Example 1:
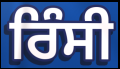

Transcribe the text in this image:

ਰਿੰਸੀ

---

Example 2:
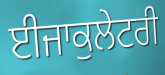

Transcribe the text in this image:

ਈਜਾਕੁਲੇਟਰੀ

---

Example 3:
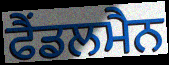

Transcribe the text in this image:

ਫੈਂਡਲਮੈਨ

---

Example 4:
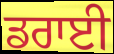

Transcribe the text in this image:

ਡਰਾਈ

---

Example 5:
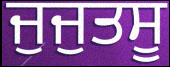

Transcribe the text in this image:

ਜੁਜੁਤਸੂ